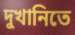
দুখানিতে